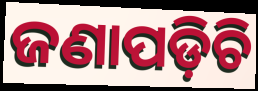
ଜଣାପଡ଼ିଚି